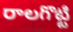
రాలగొట్టి